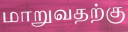
மாறுவதற்கு